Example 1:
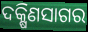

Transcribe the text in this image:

ଦକ୍ଷିଣସାଗର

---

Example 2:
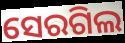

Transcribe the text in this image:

ସେରଗିଲ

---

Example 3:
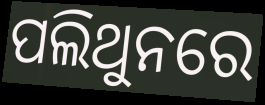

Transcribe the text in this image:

ପଲିଥୁନରେ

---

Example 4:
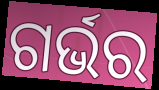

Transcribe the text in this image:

ଗର୍ଭର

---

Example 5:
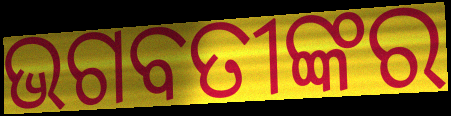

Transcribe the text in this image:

ଭଗବତୀଙ୍କର